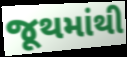
જૂથમાંથી